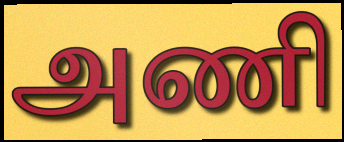
அணி